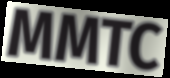
MMTC